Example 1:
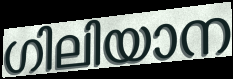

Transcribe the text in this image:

ഗിലിയാന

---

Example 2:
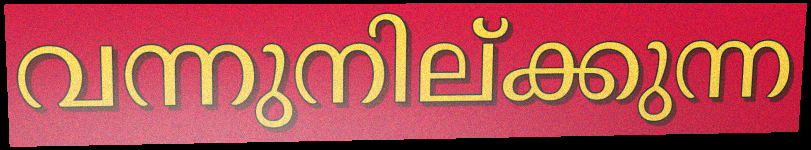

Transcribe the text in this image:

വന്നുനില്ക്കുന്ന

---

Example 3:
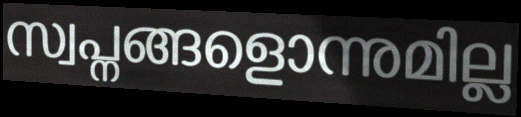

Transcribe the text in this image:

സ്വപ്നങ്ങളൊന്നുമില്ല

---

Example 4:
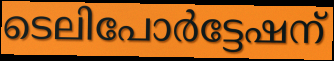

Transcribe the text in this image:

ടെലിപോർട്ടേഷന്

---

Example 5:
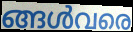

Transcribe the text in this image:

ങ്ങൾവരെ